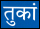
तुकां